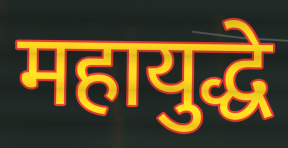
महायुद्धे